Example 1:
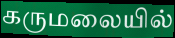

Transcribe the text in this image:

கருமலையில்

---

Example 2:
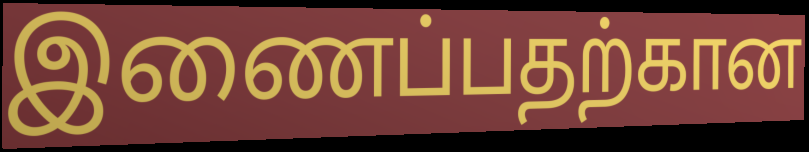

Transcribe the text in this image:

இணைப்பதற்கான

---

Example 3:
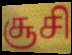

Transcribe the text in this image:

சூசி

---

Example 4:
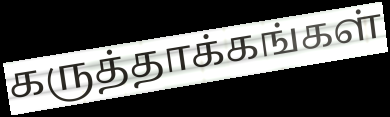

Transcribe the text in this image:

கருத்தாக்கங்கள்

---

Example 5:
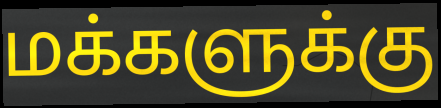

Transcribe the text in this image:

மக்களுக்கு